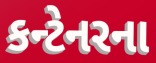
કન્ટેનરના